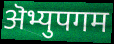
ऄभ्युपगम